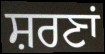
ਸ਼ਰਣਾਂ